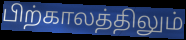
பிற்காலத்திலும்